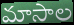
మాసాల